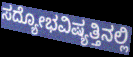
ಸದ್ಯೋಭವಿಷ್ಯತ್ತಿನಲ್ಲಿ